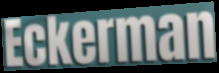
Eckerman